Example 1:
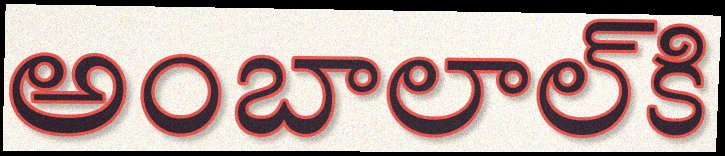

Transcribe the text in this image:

అంబాలాల్‌కి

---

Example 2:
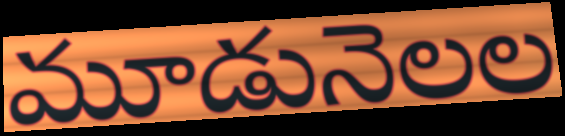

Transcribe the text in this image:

మూడునెలల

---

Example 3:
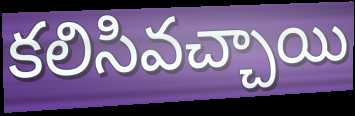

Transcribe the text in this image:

కలిసివచ్చాయి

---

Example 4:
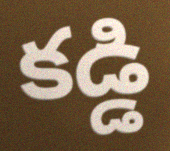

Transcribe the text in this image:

కడ్డి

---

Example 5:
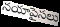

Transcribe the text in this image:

నయాపైసలు